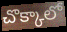
చొక్కాలో